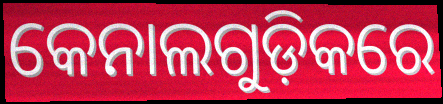
କେନାଲଗୁଡ଼ିକରେ